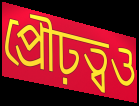
প্রৌঢ়ত্বও